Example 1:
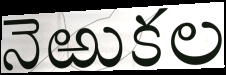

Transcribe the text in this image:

నెఱుకల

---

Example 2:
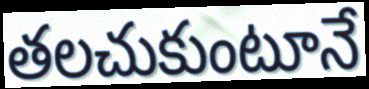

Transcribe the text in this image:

తలచుకుంటూనే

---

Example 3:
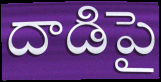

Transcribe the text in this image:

దాడిపై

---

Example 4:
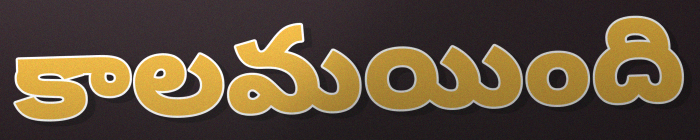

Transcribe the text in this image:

కాలమయింది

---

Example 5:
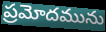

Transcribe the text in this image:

ప్రమోదమును